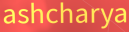
ashcharya